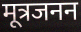
मूत्रजनन